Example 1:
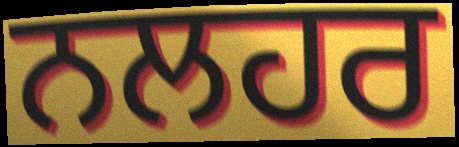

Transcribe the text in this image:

ਨਲਹਰ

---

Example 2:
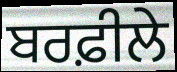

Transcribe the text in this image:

ਬਰਫ਼ੀਲੇ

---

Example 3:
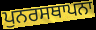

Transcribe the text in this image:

ਪੁਨਰਸਥਾਪਨਾ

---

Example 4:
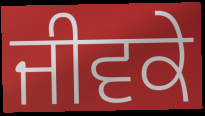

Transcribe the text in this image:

ਜੀਵਕੇ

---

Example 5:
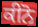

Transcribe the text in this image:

ਕੀਨੋ